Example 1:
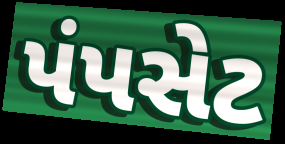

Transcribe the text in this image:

પંપસેટ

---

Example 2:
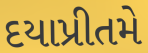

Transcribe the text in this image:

દયાપ્રીતમે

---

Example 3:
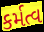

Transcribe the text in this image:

કર્મત્વ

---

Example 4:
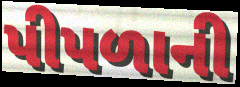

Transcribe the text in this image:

પીપળાની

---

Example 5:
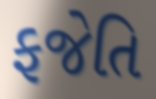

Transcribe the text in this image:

ફજેતિ